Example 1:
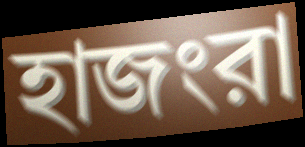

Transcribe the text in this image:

হাজংরা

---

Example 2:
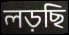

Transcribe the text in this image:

লড়ছি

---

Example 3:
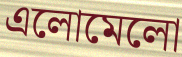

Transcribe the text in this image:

এলোমেলো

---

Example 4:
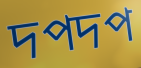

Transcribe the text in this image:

দপদপ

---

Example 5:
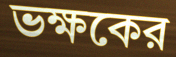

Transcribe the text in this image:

ভক্ষকের